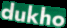
dukho